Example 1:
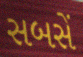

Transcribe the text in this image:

સબસેં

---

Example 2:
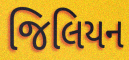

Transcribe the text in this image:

જિલિયન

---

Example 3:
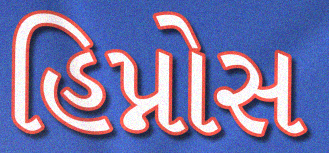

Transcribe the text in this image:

હિપ્નોસ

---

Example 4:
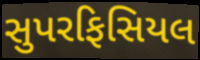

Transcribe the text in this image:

સુપરફિસિયલ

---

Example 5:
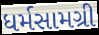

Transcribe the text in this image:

ધર્મસામગ્રી